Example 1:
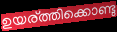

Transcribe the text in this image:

ഉയര്ത്തിക്കൊണ്ടു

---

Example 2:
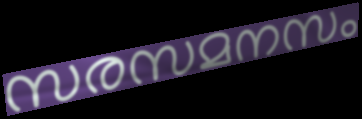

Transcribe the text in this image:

സരസമനസം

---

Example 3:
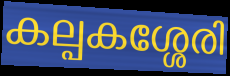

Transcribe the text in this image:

കല്പകശ്ശേരി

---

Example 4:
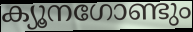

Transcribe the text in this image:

ക്യൂനഗോണ്ടും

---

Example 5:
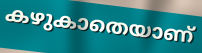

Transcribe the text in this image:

കഴുകാതെയാണ്